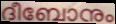
ദീബോനും